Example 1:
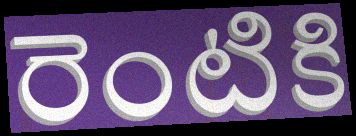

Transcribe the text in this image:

రెంటికి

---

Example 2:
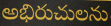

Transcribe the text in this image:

అభిరుచులను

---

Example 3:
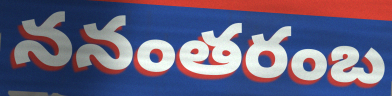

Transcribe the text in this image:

ననంతరంబ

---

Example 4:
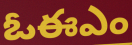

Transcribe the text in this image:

ఓఈఎం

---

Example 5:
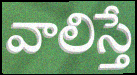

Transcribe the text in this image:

వాలిస్తే